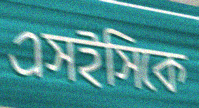
এসইসিকে